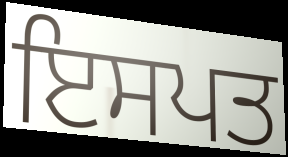
ਇਸਪਤ